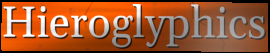
Hieroglyphics